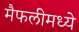
मैफलीमध्ये